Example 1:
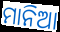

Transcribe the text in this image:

ମାନିଆ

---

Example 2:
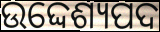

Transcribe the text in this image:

ଉଦ୍ଦେଶ୍ୟପଦ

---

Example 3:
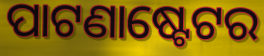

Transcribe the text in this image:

ପାଟଣାଷ୍ଟେଟର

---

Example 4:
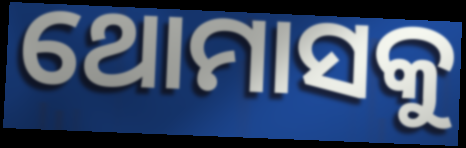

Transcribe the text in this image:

ଥୋମାସକୁ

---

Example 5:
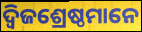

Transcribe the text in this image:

ଦ୍ୱିଜଶ୍ରେଷ୍ଠମାନେ